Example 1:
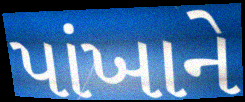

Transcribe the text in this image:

પાંખાને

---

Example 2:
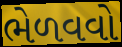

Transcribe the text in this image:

ભેળવવો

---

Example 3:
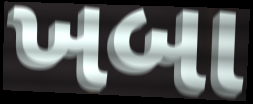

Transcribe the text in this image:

ખબા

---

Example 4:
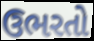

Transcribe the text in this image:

ઉભરતો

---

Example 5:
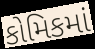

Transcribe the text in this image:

કોમિકમાં